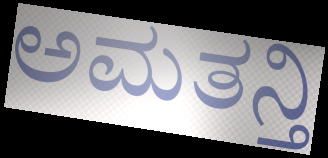
ಅಮತನ್ತಿ